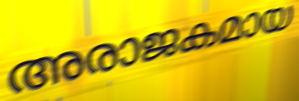
അരാജകമായ